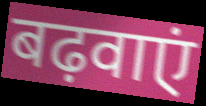
बढ़वाएं